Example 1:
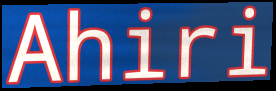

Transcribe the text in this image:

Ahiri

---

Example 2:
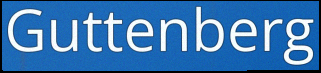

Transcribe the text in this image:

Guttenberg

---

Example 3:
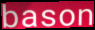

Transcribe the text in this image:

bason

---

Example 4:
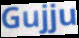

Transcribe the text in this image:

Gujju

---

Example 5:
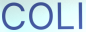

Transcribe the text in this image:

COLI